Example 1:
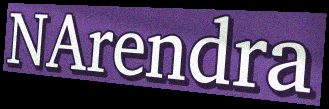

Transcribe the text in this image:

NArendra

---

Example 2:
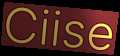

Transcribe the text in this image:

Ciise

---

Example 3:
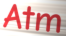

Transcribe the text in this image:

Atm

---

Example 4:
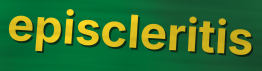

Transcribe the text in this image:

episcleritis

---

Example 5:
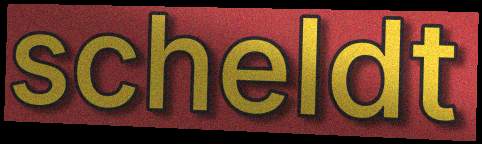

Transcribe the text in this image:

scheldt